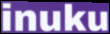
inuku